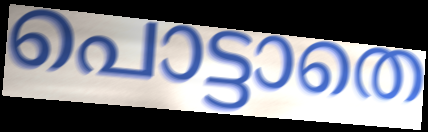
പൊട്ടാതെ